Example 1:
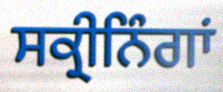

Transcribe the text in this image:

ਸਕ੍ਰੀਨਿੰਗਾਂ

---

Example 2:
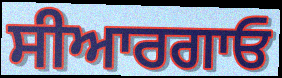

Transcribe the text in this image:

ਸੀਆਰਗਾਓ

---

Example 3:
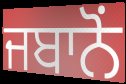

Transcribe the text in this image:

ਜਬਾਨੋਂ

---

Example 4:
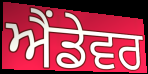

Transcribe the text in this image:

ਐਂਡੇਵਰ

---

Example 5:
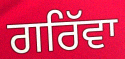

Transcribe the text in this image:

ਗਰਿੱਵਾ